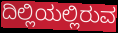
ದಿಲ್ಲಿಯಲ್ಲಿರುವ